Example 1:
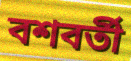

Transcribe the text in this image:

বশবর্তী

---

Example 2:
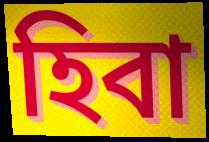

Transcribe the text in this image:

হিবা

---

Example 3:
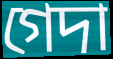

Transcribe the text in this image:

গেদা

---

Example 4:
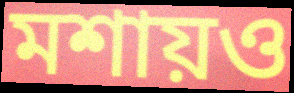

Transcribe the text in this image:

মশায়ও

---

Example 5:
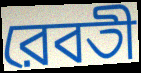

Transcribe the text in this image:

রেবতী